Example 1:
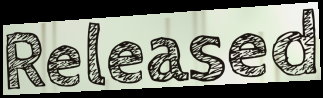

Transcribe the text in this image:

Released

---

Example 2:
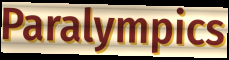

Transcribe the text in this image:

Paralympics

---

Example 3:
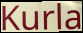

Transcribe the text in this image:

Kurla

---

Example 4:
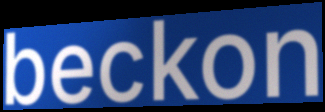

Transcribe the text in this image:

beckon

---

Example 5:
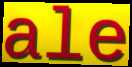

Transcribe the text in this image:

ale